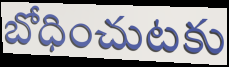
బోధించుటకు